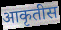
आकृतीस